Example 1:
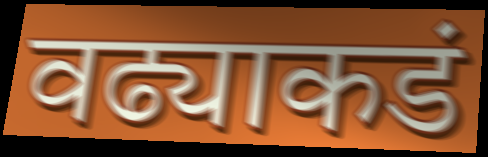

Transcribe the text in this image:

वढ्याकडं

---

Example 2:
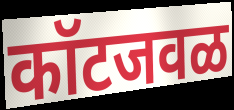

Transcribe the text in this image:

कॉटजवळ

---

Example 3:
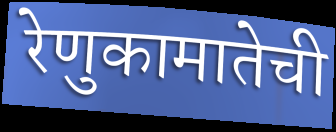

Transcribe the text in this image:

रेणुकामातेची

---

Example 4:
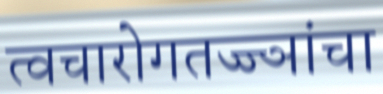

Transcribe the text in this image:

त्वचारोगतज्ज्ञांचा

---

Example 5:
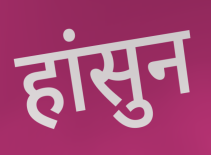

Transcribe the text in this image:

हांसुन